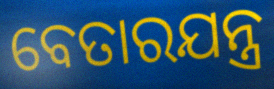
ବେତାରଯନ୍ତ୍ର